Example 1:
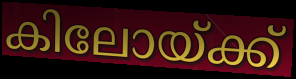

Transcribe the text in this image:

കിലോയ്ക്ക്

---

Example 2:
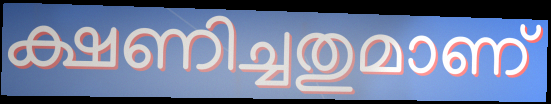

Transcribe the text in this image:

ക്ഷണിച്ചതുമാണ്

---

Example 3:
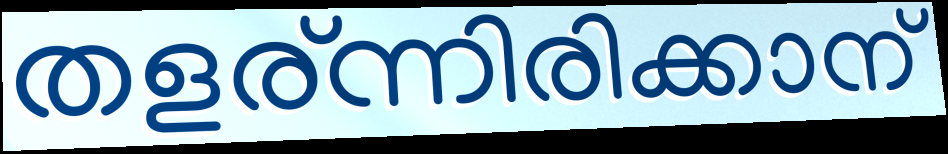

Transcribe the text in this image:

തളര്ന്നിരിക്കാന്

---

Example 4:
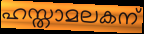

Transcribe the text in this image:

ഹസ്താമലകന്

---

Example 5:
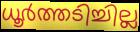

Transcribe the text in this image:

ധൂർത്തടിച്ചില്ല